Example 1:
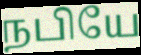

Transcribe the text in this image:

நபியே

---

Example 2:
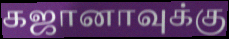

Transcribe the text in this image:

கஜானாவுக்கு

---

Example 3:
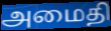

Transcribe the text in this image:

அமைதி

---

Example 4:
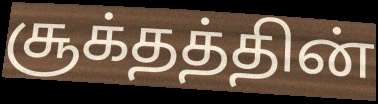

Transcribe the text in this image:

சூக்தத்தின்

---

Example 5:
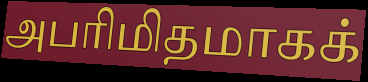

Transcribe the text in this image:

அபரிமிதமாகக்